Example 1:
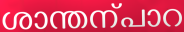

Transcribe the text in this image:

ശാന്തന്പാറ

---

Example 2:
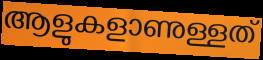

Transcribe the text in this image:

ആളുകളാണുള്ളത്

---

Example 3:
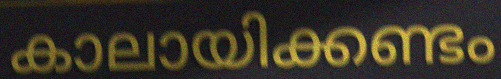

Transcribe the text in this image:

കാലായിക്കണ്ടം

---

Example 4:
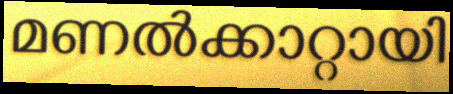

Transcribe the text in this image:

മണൽക്കാറ്റായി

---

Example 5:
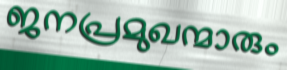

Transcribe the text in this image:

ജനപ്രമുഖന്മാരും